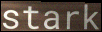
stark